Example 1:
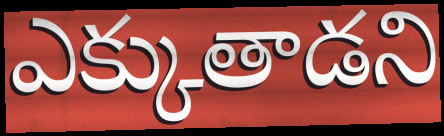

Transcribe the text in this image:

ఎక్కుతాడని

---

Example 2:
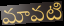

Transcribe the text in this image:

మావటి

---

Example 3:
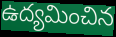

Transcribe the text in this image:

ఉద్యమించిన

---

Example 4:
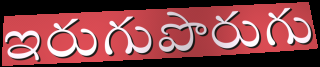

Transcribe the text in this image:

ఇరుగుపొరుగు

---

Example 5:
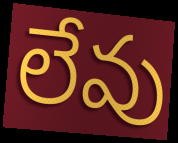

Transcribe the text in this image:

లేవు